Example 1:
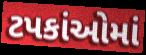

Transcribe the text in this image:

ટપકાંઓમાં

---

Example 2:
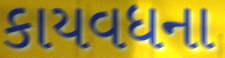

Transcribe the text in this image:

કાયવધના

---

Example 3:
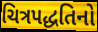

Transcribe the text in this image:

ચિત્રપદ્ધતિનો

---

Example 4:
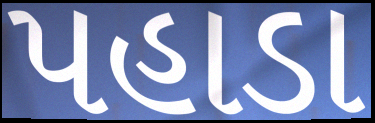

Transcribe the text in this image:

પહાડા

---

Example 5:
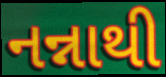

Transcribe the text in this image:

નન્નાથી